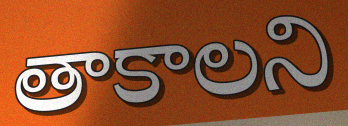
తాకాలని